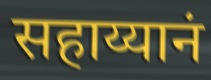
सहाय्यानं